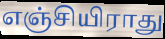
எஞ்சியிராது